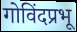
गोविंदप्रभू